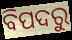
ବିପଦରୁ